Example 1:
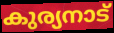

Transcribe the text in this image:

കുര്യനാട്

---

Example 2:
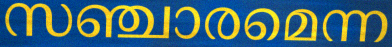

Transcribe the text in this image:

സഞ്ചാരമെന്ന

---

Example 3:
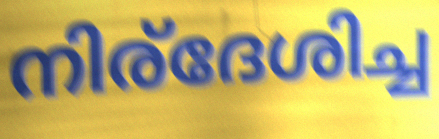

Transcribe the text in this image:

നിര്ദേശിച്ച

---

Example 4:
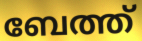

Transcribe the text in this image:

ബേത്ത്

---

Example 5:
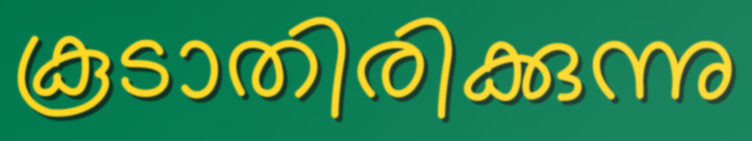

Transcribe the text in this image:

കൂടാതിരിക്കുന്നു